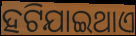
ହଟିଯାଇଥାଏ